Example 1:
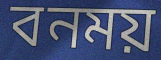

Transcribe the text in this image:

বনময়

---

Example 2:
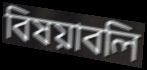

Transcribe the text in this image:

বিষয়াবলি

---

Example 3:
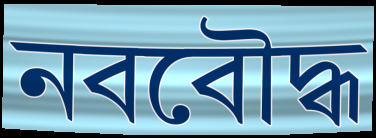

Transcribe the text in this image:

নববৌদ্ধ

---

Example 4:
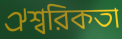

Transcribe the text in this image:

ঐশ্বরিকতা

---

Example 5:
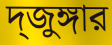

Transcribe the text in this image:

দ্জুঙ্গার